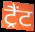
ट्रैंट